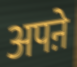
अपऩे